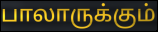
பாலாருக்கும்